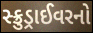
સ્ક્રુડ્રાઈવરનો